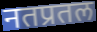
नतप्रतल